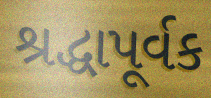
શ્રદ્ધાપૂર્વક